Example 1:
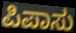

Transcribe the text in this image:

ಪಿಪಾಸು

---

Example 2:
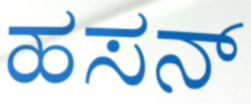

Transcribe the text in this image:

ಹಸನ್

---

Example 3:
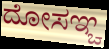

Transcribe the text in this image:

ದೋಸಞ್ಚ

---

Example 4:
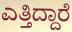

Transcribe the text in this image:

ಎತ್ತಿದ್ದಾರೆ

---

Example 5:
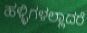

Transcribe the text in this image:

ಹಳ್ಳಿಗಳಲ್ಲಾದರೆ